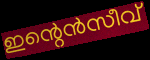
ഇന്റെൻസീവ്